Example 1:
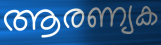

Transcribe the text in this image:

ആരണ്യക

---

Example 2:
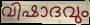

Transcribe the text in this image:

വിഷാദവും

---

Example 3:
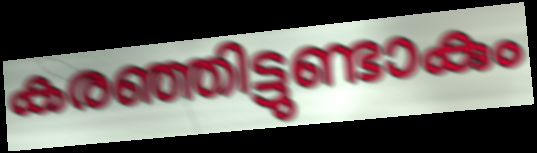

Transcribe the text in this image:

കരഞ്ഞിട്ടുണ്ടാകും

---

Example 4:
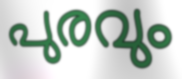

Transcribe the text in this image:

പുരവും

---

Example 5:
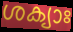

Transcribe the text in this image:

ശക്യാഃ